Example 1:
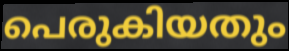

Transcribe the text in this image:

പെരുകിയതും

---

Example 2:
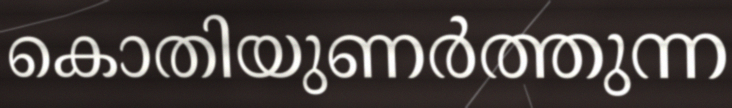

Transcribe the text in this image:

കൊതിയുണർത്തുന്ന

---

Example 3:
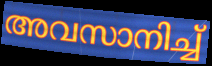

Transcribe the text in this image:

അവസാനിച്ച്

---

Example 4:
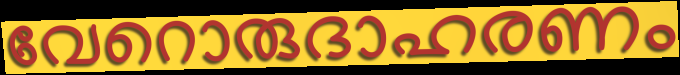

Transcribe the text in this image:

വേറൊരുദാഹരണം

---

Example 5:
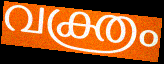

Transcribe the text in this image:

വക്ത്രം